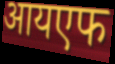
आयएफ